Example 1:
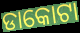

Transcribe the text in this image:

ଡାକୋଟା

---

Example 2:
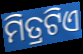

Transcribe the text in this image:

ମିତ୍ରଟିଏ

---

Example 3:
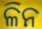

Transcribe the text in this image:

ଳିନ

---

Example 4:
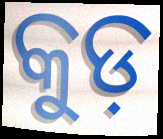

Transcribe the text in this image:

କୁଡ଼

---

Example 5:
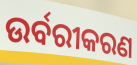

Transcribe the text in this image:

ଉର୍ବରୀକରଣ